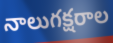
నాలుగక్షరాల